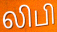
லிபி